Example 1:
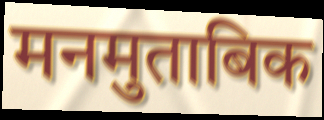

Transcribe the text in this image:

मनमुताबिक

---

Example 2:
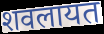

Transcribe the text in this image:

शवलायत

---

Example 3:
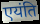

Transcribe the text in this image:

एयंति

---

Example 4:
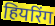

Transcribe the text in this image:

हियरिंग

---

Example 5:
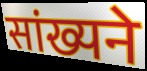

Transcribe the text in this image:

सांख्यने